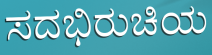
ಸದಭಿರುಚಿಯ